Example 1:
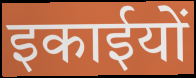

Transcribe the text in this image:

इकाईयों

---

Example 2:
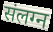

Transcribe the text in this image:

संलग्न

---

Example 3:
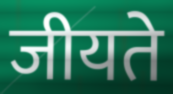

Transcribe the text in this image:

जीयते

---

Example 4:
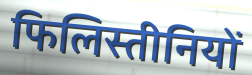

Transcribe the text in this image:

फिलिस्तीनियों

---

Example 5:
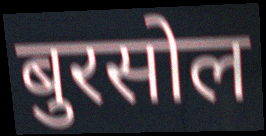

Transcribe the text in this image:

बुरसोल